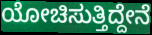
ಯೋಚಿಸುತ್ತಿದ್ದೇನೆ